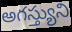
అగస్త్యుని